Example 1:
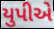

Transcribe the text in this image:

યુપીએ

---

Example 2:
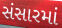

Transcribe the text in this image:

સંસારમાં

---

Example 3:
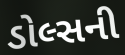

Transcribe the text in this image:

ડોલ્સની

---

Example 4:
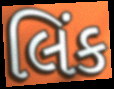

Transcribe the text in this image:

લિંક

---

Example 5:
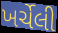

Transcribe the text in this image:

ખર્ચેલી